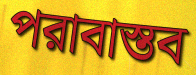
পরাবাস্তব